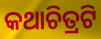
କଥାଚିତ୍ରଟି